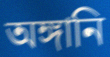
অঙ্গানি